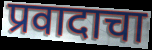
प्रवादाचा